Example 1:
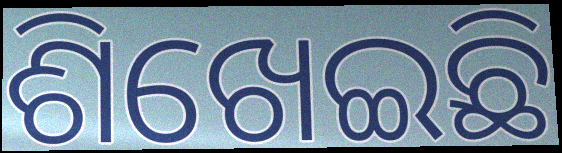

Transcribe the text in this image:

ଶିଖେଇଛି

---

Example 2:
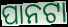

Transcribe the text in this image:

ପାନଟା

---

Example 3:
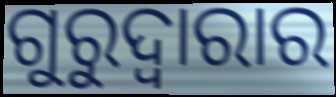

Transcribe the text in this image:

ଗୁରୁଦ୍ୱାରାର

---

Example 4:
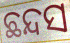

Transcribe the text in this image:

ଛନ୍ଦସ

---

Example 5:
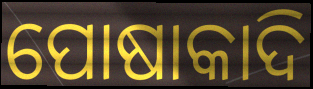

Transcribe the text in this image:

ପୋଷାକାଦି